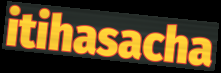
itihasacha